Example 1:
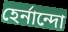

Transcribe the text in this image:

হের্নান্দো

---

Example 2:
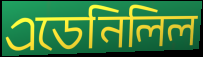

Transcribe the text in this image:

এডেনিলিল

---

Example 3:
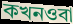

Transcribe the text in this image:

কখনওবা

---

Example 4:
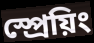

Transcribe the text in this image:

স্প্রেয়িং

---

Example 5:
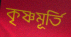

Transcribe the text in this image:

কৃষ্ণমূর্তি